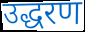
उद्धरण